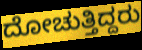
ದೋಚುತ್ತಿದ್ದರು